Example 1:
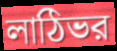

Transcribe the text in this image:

লাঠিভর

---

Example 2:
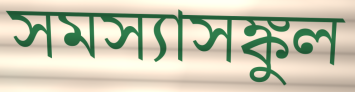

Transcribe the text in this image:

সমস্যাসঙ্কুল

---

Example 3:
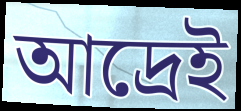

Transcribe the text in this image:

আদ্রেই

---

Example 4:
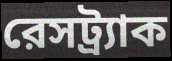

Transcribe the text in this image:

রেসট্র্যাক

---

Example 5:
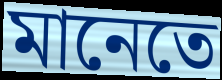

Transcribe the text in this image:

মানেতে